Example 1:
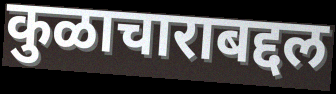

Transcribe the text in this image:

कुळाचाराबद्दल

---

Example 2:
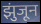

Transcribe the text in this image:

झुंजून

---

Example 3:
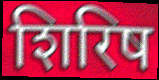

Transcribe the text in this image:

शिरिष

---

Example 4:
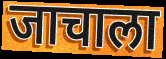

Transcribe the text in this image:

जाचाला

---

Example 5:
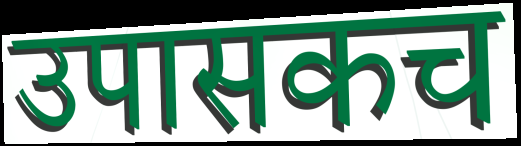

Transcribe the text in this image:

उपासकच